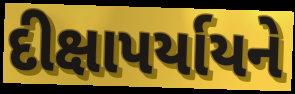
દીક્ષાપર્યાયને